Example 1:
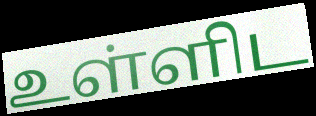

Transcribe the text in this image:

உள்ளிட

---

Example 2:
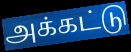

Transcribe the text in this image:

அக்கட்டு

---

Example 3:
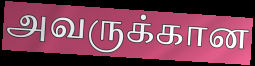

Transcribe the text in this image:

அவருக்கான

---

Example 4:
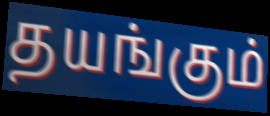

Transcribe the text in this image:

தயங்கும்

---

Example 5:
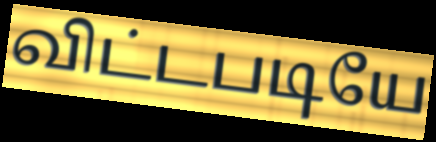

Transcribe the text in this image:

விட்டபடியே